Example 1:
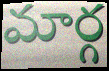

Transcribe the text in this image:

మార్గ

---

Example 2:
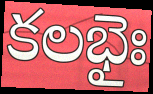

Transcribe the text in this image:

కలభైః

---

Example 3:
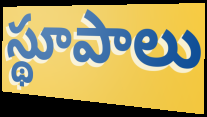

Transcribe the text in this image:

స్థూపాలు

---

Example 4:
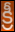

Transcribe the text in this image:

క్రీ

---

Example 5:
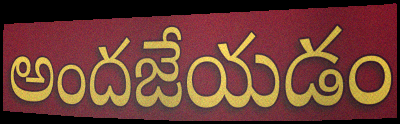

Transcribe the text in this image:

అందజేయడం